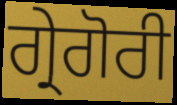
ਗ੍ਰੇਗੋਰੀ